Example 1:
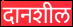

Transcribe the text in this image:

दानशील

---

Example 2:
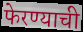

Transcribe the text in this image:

फेरण्याची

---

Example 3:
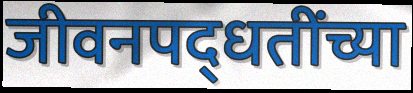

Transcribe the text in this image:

जीवनपद्धतींच्या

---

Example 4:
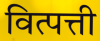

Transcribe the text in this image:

वित्पत्ती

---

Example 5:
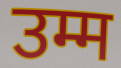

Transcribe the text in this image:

उम्म